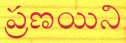
ప్రణయిని